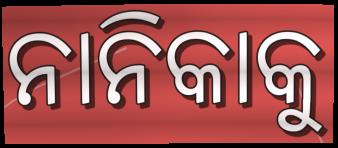
ନାନିକାକୁ